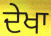
ਦੇਖਾ